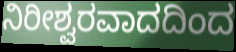
ನಿರೀಶ್ವರವಾದದಿಂದ